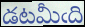
డటమీఁది